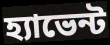
হ্যাভেন্ট